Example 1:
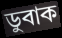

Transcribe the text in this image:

ডুবাক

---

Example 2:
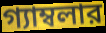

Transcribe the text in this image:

গ্যাম্বলার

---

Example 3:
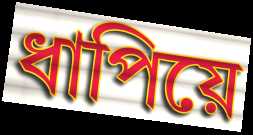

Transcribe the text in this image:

ধাপিয়ে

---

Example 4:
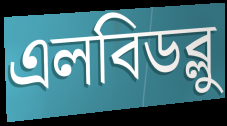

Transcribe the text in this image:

এলবিডব্লু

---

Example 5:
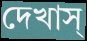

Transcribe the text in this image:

দেখাস্